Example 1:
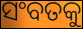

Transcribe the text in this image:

ସଂବତକୁ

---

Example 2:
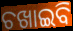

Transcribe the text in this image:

ଚଖାଇବି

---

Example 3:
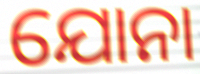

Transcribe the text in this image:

ଯୋନା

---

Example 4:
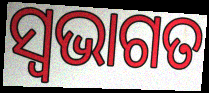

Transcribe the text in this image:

ସ୍ଵଭାଗତ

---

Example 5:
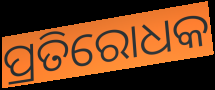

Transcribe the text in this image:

ପ୍ରତିରୋଧକ